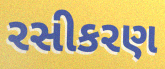
રસીકરણ